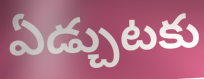
ఏడ్చుటకు